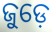
ଜୁଡ଼େ